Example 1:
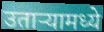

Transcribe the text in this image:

उताऱ्यामध्ये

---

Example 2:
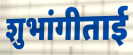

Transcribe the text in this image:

शुभांगीताई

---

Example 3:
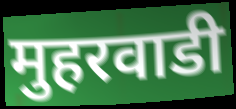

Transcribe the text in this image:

मुहरवाडी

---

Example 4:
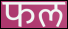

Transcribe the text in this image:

फल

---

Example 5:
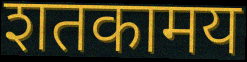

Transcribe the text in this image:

शतकामय